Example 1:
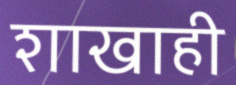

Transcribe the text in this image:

शाखाही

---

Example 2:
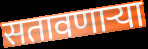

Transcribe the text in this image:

सतावणार्‍या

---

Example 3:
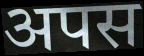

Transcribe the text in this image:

अपस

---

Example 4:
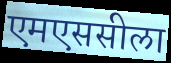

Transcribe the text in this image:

एमएससीला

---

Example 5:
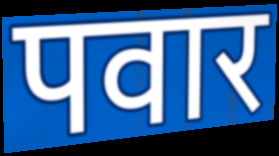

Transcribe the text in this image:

पवार